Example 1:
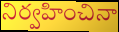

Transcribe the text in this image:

నిర్వహించినా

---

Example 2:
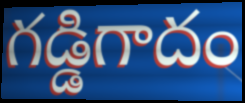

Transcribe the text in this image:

గడ్డిగాదం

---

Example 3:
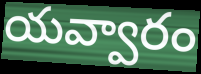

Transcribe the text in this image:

యవ్వారం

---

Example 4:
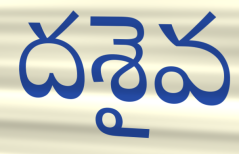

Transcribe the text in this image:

దశైవ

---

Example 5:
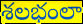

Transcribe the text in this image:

శలభంలా